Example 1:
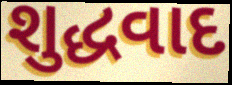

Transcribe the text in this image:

શુદ્ધવાદ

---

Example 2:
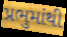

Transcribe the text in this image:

પ્રભુમાંથી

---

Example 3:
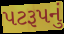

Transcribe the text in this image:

પટરૂપનું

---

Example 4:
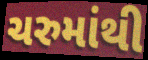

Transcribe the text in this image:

ચરુમાંથી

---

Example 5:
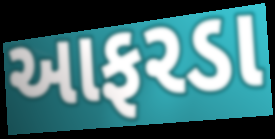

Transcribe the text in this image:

આફરડા